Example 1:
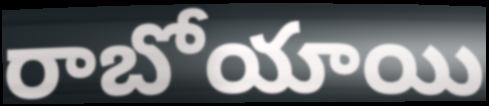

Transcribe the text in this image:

రాబోయాయి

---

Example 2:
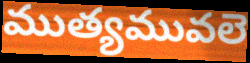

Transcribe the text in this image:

ముత్యమువలె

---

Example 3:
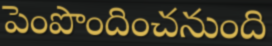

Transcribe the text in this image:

పెంపొందించనుంది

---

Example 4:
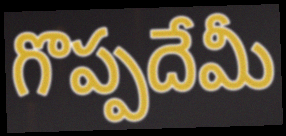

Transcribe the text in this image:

గొప్పదేమీ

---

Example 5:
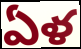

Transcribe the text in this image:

ఏళ